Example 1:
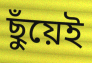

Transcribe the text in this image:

ছুঁয়েই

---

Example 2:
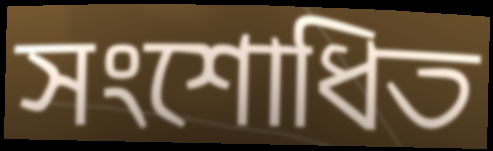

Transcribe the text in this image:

সংশোধিত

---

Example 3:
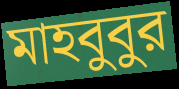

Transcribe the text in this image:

মাহবুবুর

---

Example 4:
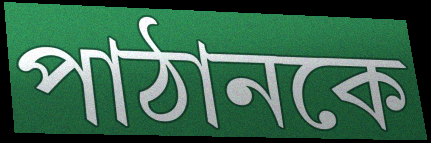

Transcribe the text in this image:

পাঠানকে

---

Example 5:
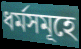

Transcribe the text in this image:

ধর্মসমূহে